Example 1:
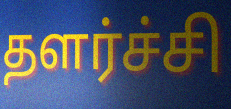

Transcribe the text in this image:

தளர்ச்சி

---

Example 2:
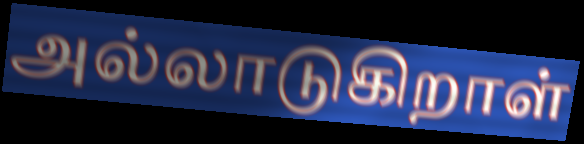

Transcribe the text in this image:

அல்லாடுகிறாள்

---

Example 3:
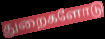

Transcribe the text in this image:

துறைகளோடு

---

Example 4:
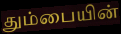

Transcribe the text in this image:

தும்பையின்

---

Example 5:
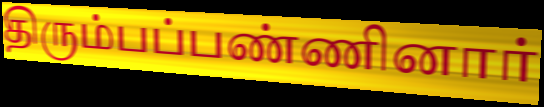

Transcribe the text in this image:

திரும்பப்பண்ணினார்